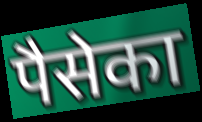
पैसेका